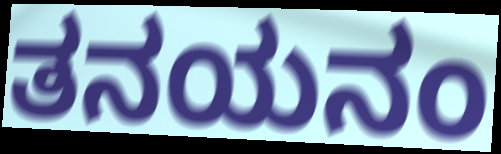
ತನಯನಂ